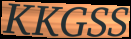
KKGSS